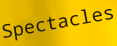
Spectacles